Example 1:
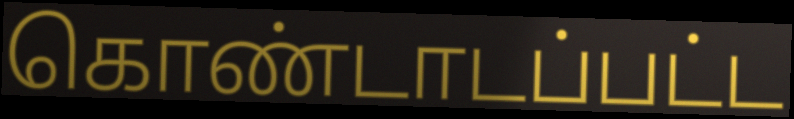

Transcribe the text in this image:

கொண்டாடப்பட்ட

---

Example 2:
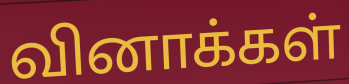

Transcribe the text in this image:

வினாக்கள்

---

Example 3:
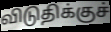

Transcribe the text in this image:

விடுதிக்குச்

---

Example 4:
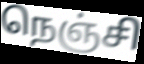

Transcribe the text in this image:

நெஞ்சி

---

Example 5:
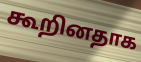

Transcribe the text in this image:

கூறினதாக